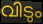
വിടും